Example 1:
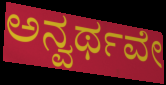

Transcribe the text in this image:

ಅನ್ವರ್ಥವೇ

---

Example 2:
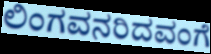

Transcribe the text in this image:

ಲಿಂಗವನರಿದವಂಗೆ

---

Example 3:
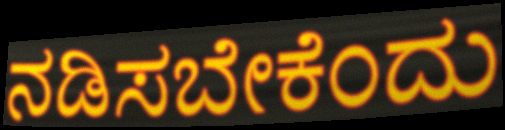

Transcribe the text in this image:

ನಡಿಸಬೇಕೆಂದು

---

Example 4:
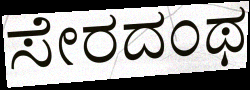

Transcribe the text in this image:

ಸೇರದಂಥ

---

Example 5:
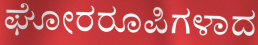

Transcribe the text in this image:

ಘೋರರೂಪಿಗಳಾದ